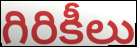
గిరికీలు